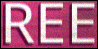
REE